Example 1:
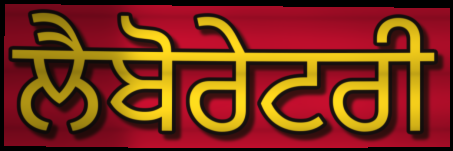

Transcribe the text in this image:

ਲੈਬੋਰੇਟਰੀ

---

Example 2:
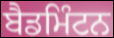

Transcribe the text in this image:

ਬੈਡਮਿੰਟਨ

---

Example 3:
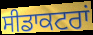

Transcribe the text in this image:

ਸੀਡਾਕਟਰਾਂ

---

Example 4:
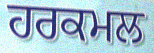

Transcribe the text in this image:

ਹਰਕਮਲ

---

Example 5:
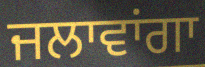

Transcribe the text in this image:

ਜਲਾਵਾਂਗਾ